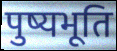
पुष्यभूति